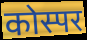
कोस्पर